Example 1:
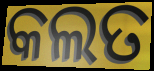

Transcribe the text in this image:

କଲତ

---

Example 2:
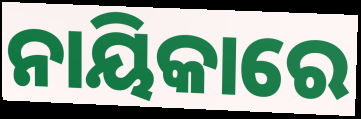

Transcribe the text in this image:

ନାୟିକାରେ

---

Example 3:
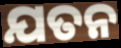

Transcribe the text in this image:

ଯତନ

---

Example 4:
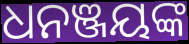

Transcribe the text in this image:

ଧନଞ୍ଜୟଙ୍କ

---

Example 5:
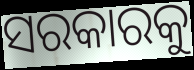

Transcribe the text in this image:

ସରକାରକୁ